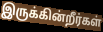
இருக்கின்றீர்கள்